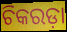
ଚିକରଡ଼ା